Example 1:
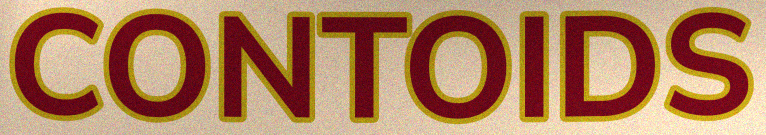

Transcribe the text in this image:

CONTOIDS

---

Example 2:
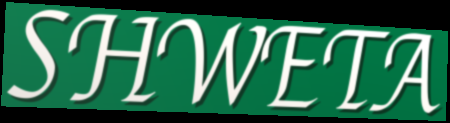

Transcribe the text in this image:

SHWETA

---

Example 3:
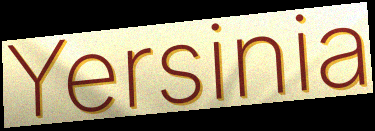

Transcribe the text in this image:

Yersinia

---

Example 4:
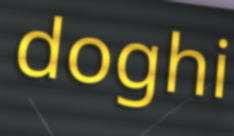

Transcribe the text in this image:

doghi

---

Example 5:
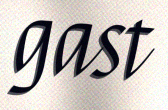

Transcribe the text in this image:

gast